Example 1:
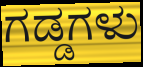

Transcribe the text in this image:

ಗಡ್ಡಗಳು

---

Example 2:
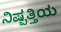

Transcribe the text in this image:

ನಿಷ್ಪತ್ತಿಯ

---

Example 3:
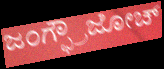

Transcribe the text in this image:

ಜಂಗ್ಫ್ರೌಜೋಚ್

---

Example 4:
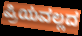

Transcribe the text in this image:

ಪ್ರಿಯವಲ್ಲದ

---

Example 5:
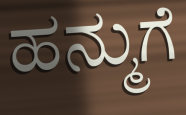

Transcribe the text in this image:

ಹನ್ಮುಗೆ